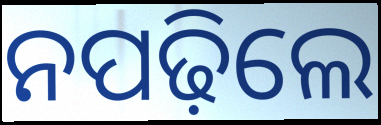
ନପଢ଼ିଲେ